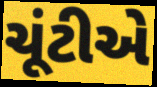
ચૂંટીએ